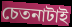
চেতনাটাই